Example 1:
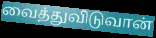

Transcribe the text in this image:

வைத்துவிடுவான்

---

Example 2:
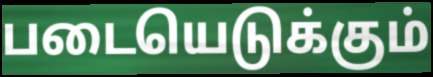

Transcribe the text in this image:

படையெடுக்கும்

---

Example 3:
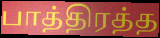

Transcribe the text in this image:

பாத்திரத்த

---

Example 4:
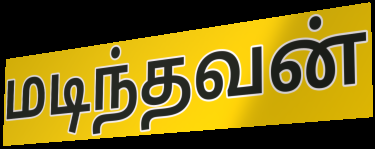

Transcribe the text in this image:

மடிந்தவன்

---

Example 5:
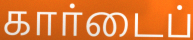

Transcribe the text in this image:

கார்டைப்